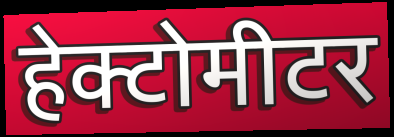
हेक्टोमीटर